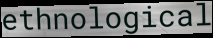
ethnological